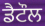
ਡੈਟੌਲ